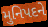
મુનિપદને